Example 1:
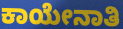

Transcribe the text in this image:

ಕಾಯೇನಾತಿ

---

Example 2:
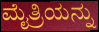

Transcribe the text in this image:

ಮೈತ್ರಿಯನ್ನು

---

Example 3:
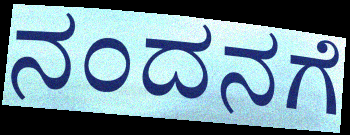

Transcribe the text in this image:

ನಂದನಗೆ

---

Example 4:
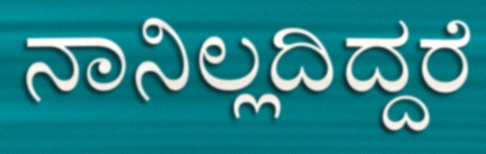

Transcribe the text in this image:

ನಾನಿಲ್ಲದಿದ್ದರೆ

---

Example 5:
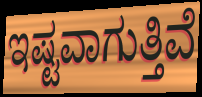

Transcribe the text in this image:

ಇಷ್ಟವಾಗುತ್ತಿವೆ